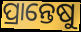
ପ୍ରାନ୍ତେଷୁ